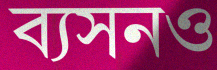
ব্যসনও